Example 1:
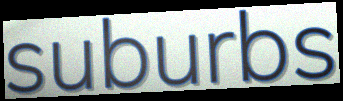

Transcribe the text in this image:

suburbs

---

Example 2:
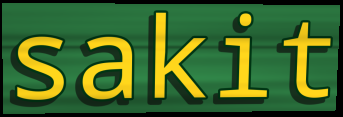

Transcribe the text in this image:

sakit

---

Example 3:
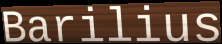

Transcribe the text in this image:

Barilius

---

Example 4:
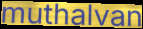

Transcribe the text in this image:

muthalvan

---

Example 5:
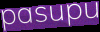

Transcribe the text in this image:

pasupu